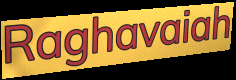
Raghavaiah